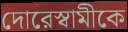
দোরেস্বামীকে